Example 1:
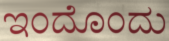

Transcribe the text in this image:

ಇಂದೊಂದು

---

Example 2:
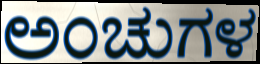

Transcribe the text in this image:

ಅಂಚುಗಳ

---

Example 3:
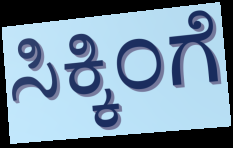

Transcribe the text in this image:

ಸಿಕ್ಕಿಂಗೆ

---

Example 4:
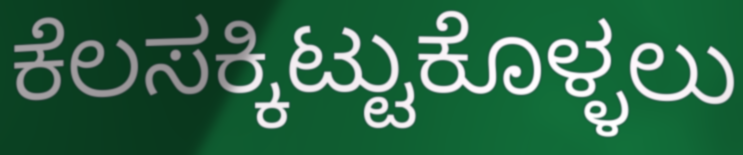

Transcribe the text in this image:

ಕೆಲಸಕ್ಕಿಟ್ಟುಕೊಳ್ಳಲು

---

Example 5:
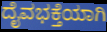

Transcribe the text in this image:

ದೈವಭಕ್ತೆಯಾಗಿ